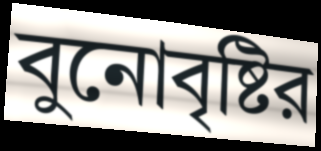
বুনোবৃষ্টির